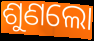
ଶୁଣଲୋ